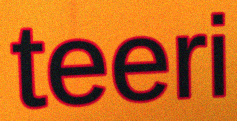
teeri